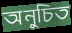
অনুচিত